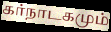
கர்நாடகமும்